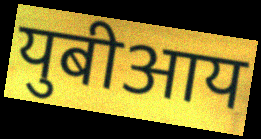
युबीआय